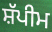
ਸ਼ੱਪੀਮ